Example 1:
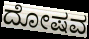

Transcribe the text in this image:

ದೋಷವ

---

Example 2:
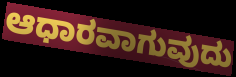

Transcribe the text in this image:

ಆಧಾರವಾಗುವುದು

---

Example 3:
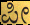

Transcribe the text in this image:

ಪೀ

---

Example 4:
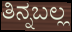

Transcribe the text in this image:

ತಿನ್ನಬಲ್ಲ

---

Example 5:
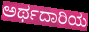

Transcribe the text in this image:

ಅರ್ಥದಾರಿಯ